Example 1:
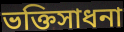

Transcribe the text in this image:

ভক্তিসাধনা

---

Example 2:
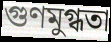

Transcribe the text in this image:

গুণমুগ্ধতা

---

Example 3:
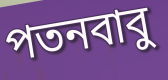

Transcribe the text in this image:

পতনবাবু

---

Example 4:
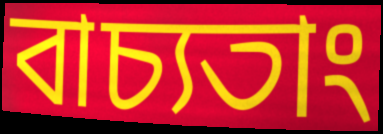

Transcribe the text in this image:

বাচ্যতাং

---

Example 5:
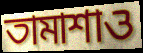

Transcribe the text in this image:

তামাশাও